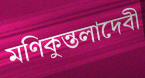
মণিকুন্তলাদেবী